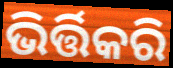
ଭିର୍ତ୍ତିକରି